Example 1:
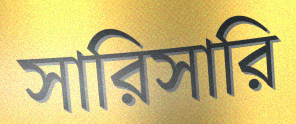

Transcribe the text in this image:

সারিসারি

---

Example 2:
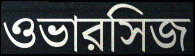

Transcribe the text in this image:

ওভারসিজ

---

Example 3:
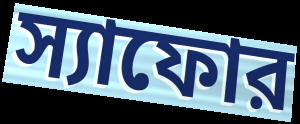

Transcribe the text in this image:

স্যাফোর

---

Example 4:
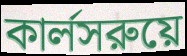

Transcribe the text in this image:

কার্লসরুয়ে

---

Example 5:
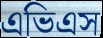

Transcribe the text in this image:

এভিএস